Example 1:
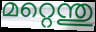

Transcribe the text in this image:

മറ്റെന്തു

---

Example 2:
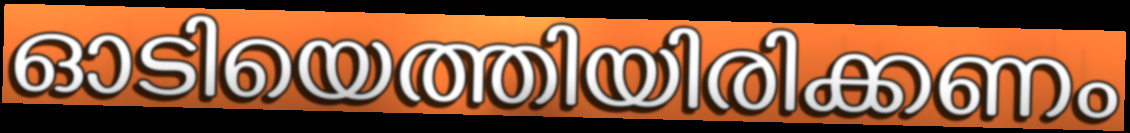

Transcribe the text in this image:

ഓടിയെത്തിയിരിക്കണം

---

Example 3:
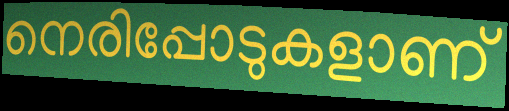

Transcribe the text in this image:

നെരിപ്പോടുകളാണ്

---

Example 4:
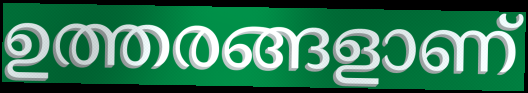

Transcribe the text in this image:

ഉത്തരങ്ങളാണ്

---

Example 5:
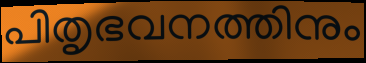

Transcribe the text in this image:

പിതൃഭവനത്തിനും